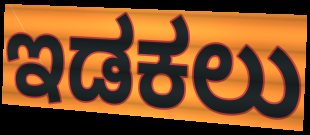
ಇಡಕಲು